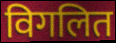
विगलित